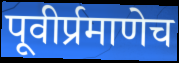
पूवीर्प्रमाणेच